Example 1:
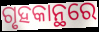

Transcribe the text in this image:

ଗୃହକାନ୍ଥରେ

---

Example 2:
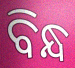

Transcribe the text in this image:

ବିନ୍ଧ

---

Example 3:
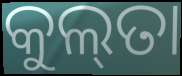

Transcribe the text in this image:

କୁଲ୍‌ତା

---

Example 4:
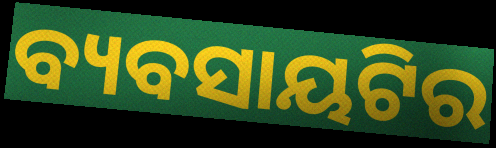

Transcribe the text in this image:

ବ୍ୟବସାୟଟିର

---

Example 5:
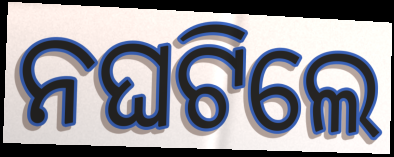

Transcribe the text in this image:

ନଘଟିଲେ